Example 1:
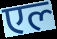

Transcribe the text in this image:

एल्‍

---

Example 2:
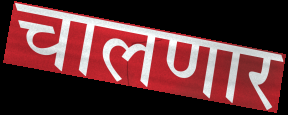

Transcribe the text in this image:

चालणार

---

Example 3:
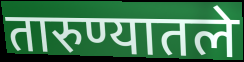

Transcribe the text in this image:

तारुण्यातले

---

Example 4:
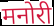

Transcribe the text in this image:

मनोरी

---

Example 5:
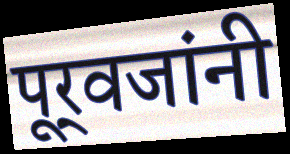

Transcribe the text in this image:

पूर्वजांनी